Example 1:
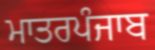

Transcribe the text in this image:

ਮਾਤਰਪੰਜਾਬ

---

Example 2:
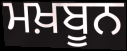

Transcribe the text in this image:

ਮਖ਼ਬੂਨ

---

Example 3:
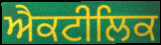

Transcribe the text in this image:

ਐਕਟੀਲਿਕ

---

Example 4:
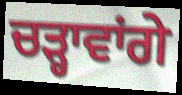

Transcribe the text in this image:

ਚੜ੍ਹਾਵਾਂਗੇ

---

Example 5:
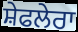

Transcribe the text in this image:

ਸ਼ੇਫਲੇਰਾ